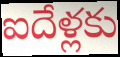
ఐదేళ్లకు